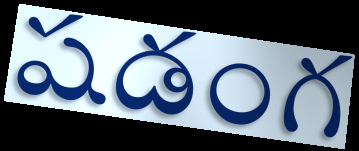
షడంగ